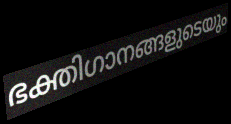
ഭക്തിഗാനങ്ങളുടെയും